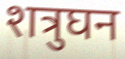
शत्रुघन